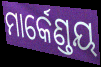
ମାର୍କେଣ୍ଡୟ